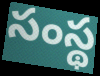
సంస్థ